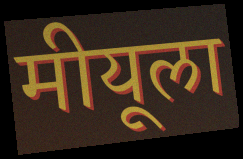
मीयूला